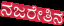
ನಜರೇತಿನ